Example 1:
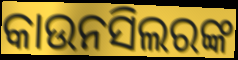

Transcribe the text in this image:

କାଉନସିଲରଙ୍କ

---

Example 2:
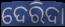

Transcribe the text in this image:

ଦେରିଦା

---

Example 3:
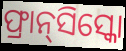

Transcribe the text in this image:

ଫ୍ରାନ୍‌ସିସ୍କୋ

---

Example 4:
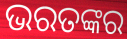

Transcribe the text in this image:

ଭରତଙ୍କର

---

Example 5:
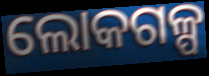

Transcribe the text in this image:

ଲୋକଗଳ୍ପ